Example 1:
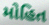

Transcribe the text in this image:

મોહિત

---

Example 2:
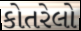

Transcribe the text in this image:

કોતરેલો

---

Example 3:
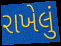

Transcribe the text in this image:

રાખેલું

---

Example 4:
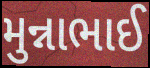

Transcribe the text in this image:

મુન્નાભાઈ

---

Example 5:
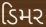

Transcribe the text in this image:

ડિમર